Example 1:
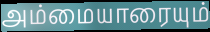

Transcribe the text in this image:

அம்மையாரையும்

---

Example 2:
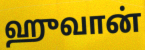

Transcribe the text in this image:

ஹுவான்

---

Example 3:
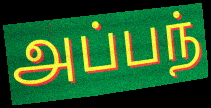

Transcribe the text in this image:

அப்பந்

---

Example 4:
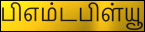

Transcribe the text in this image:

பிஎம்டபிள்யூ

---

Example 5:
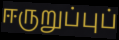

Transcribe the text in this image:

ஈருறுப்புப்